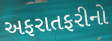
અફરાતફરીનો